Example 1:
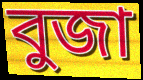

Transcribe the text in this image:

বুজা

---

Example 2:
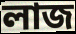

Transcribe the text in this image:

লাজ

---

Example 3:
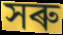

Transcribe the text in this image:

সৰু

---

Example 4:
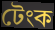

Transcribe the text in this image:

টেংক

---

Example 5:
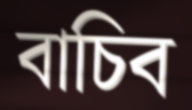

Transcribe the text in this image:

বাচিব